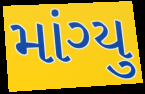
માંગ્યુ